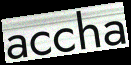
accha